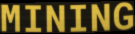
MINING